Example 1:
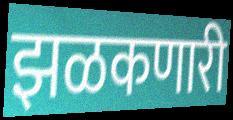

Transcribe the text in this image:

झळकणारी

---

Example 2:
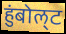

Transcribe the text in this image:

हुंबोल्ट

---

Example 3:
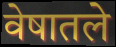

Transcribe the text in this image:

वेषातले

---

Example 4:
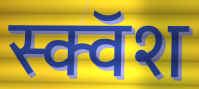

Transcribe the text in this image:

स्क्वॅश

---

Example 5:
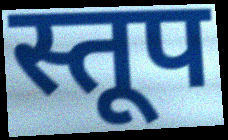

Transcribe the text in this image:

स्तूप